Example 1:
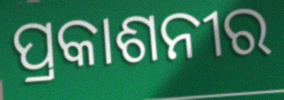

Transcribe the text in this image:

ପ୍ରକାଶନୀର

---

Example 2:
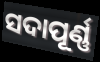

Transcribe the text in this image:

ସଦାପୂର୍ଣ୍ଣ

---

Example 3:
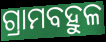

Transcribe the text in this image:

ଗ୍ରାମବହୁଳ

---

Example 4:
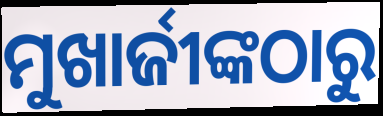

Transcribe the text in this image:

ମୁଖାର୍ଜୀଙ୍କଠାରୁ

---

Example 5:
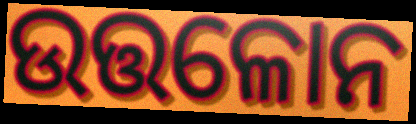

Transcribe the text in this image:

ଉତ୍ତଳୋନ